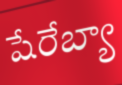
షేరేబ్యా